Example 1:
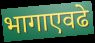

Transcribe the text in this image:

भागाएवढे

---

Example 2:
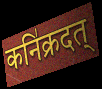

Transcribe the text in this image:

कनि॑क्रदत्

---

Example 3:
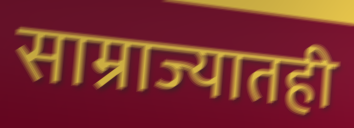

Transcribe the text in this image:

साम्राज्यातही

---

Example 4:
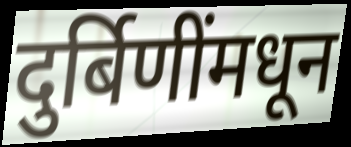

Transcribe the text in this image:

दुर्बिणींमधून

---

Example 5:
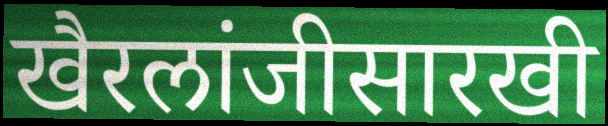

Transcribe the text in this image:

खैरलांजीसारखी